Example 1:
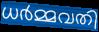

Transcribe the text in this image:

ധർമ്മവതി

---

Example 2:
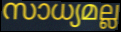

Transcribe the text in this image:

സാധ്യമല്ല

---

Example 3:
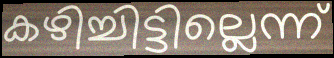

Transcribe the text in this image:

കഴിച്ചിട്ടില്ലെന്ന്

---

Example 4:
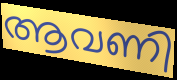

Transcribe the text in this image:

ആവണി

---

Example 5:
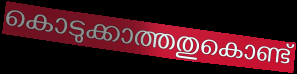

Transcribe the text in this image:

കൊടുക്കാത്തതുകൊണ്ട്